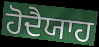
ਹੋਦੈਯਾਹ